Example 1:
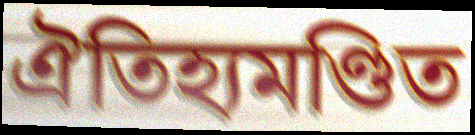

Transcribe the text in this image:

ঐতিহ্যমণ্ডিত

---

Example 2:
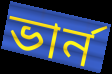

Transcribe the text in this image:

ভার্ন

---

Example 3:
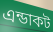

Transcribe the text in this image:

এন্ডাকট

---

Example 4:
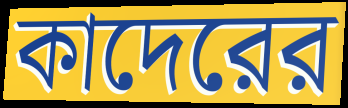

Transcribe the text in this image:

কাদেরের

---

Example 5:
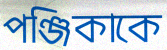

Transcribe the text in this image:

পঞ্জিকাকে